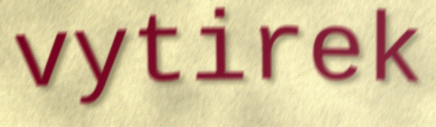
vytirek